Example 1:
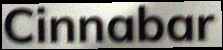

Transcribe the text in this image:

Cinnabar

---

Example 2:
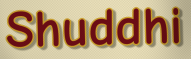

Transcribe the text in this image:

Shuddhi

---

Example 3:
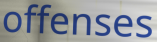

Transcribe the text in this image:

offenses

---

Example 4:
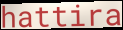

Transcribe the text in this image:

hattira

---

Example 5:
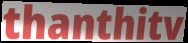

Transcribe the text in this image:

thanthitv